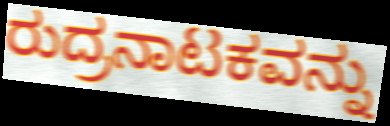
ರುದ್ರನಾಟಕವನ್ನು